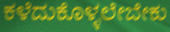
ಕಳೆದುಕೊಳ್ಳಲೇಬೇಕು